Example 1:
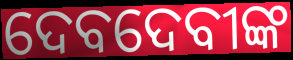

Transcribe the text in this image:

ଦେବଦେବୀଙ୍କ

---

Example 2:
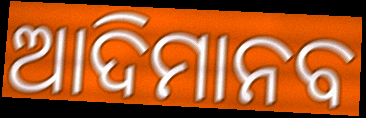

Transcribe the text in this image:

ଆଦିମାନବ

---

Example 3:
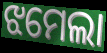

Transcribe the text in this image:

ଝମେଲା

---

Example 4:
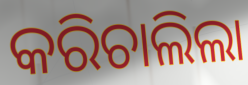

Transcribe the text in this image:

କରିଚାଲିଲା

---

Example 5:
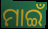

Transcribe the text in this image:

ମାଇଁ